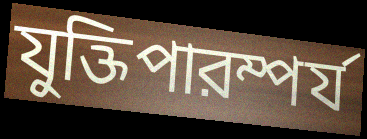
যুক্তিপারম্পর্য